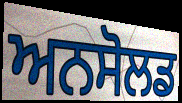
ਅਨਸੋਲਡ